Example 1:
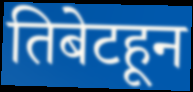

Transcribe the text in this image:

तिबेटहून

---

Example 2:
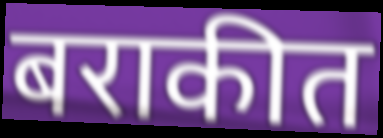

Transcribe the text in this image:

बराकीत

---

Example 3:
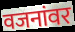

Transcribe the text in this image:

वजनांवर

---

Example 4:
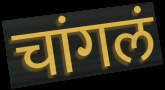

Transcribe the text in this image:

चांगलं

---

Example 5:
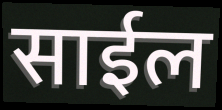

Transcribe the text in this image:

साईल